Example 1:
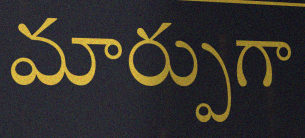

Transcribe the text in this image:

మార్పుగా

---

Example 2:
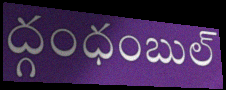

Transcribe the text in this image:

ద్గంధంబుల్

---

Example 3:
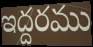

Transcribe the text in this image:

ఇద్దరము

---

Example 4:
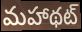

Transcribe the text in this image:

మహాథట్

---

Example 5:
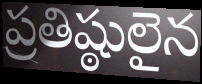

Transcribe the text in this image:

ప్రతిష్ఠులైన